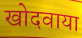
खोदवाया